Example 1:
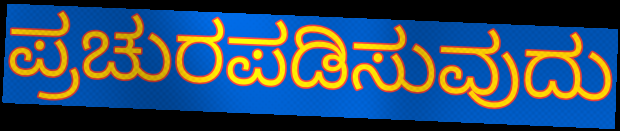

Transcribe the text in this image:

ಪ್ರಚುರಪಡಿಸುವುದು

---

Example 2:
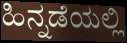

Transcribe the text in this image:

ಹಿನ್ನಡೆಯಲ್ಲಿ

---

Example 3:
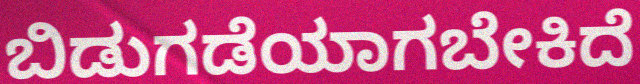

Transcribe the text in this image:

ಬಿಡುಗಡೆಯಾಗಬೇಕಿದೆ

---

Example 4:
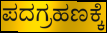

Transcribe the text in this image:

ಪದಗ್ರಹಣಕ್ಕೆ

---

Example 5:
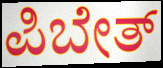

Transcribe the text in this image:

ಪಿಬೇತ್